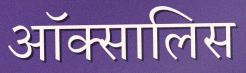
ऑक्सालिस